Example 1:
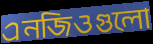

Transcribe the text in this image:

এনজিওগুলো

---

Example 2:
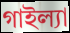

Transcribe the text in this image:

গাইল্যা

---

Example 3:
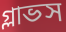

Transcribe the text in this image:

গ্লাভস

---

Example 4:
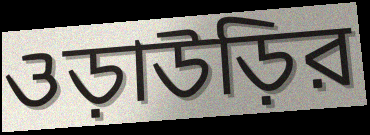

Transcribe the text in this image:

ওড়াউড়ির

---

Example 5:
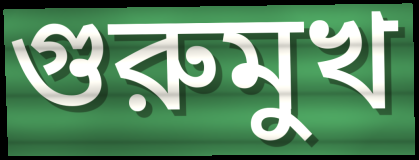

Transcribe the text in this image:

গুরুমুখ